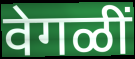
वेगळीं